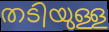
തടിയുള്ള